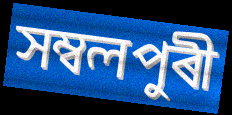
সম্বলপুৰী